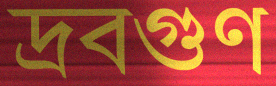
দ্রবগুণ